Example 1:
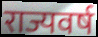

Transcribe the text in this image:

राज्यवर्ष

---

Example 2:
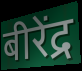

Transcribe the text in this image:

बीरेंद्र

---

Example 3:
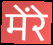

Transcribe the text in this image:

मेंरे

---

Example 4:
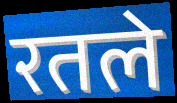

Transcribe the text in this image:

रतले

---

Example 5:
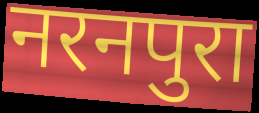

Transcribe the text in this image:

नरनपुरा